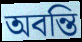
অবন্তি